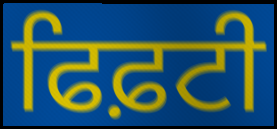
ਫਿਫ਼ਟੀ